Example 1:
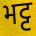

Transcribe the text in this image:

भट्ट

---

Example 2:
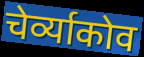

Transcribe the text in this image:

चेर्व्याकोव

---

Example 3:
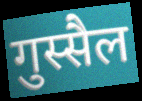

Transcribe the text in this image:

गुस्सैल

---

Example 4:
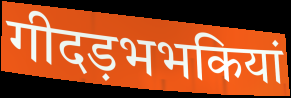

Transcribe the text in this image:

गीदड़भभकियां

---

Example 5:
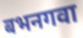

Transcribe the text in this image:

बभनगवा